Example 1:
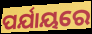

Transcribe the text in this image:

ପର୍ଯାୟରେ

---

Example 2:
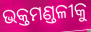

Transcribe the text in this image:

ଭକ୍ତମଣ୍ଡଳୀକୁ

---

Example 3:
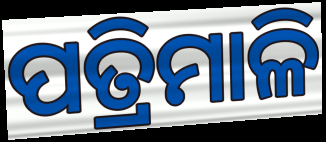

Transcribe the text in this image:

ପତ୍ରିମାଳି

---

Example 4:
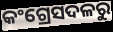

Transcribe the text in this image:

କଂଗ୍ରେସଦଳରୁ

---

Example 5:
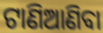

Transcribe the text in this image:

ଟାଣିଆଣିବା